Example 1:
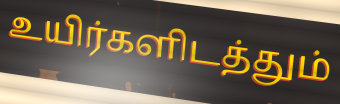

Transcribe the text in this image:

உயிர்களிடத்தும்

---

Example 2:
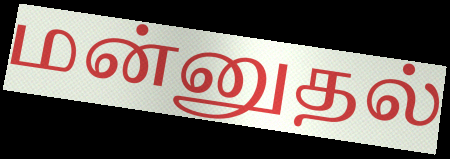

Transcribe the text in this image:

மன்னுதல்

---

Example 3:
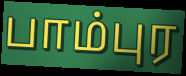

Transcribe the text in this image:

பாம்புர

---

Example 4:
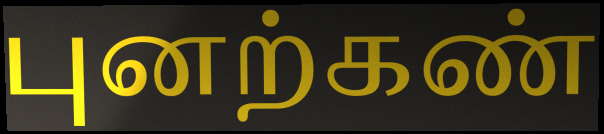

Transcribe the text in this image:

புனற்கண்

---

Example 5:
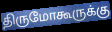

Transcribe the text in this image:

திருமோகூருக்கு